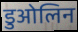
डुओलिन